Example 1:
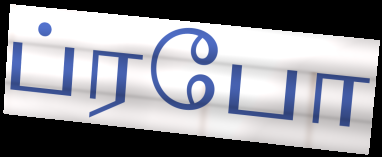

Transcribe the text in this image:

ப்ரபோ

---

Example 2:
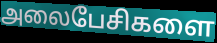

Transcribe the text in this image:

அலைபேசிகளை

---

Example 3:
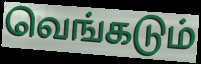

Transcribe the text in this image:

வெங்கடும்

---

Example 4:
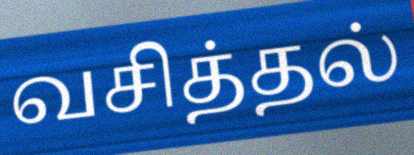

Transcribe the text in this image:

வசித்தல்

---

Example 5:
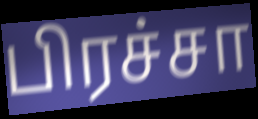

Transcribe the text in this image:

பிரச்சா